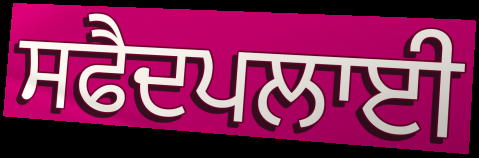
ਸਫੈਦਪਲਾਈ